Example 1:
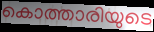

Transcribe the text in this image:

കൊത്താരിയുടെ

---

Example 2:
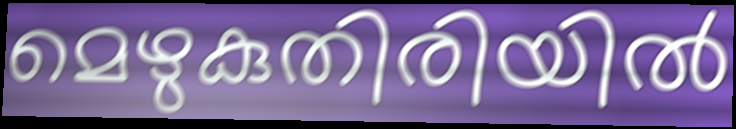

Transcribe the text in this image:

മെഴുകുതിരിയിൽ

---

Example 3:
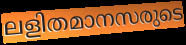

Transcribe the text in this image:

ലളിതമാനസരുടെ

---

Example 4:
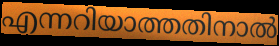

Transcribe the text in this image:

എന്നറിയാത്തതിനാൽ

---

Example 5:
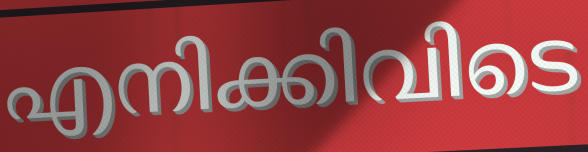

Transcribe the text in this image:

എനിക്കിവിടെ